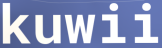
kuwii